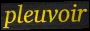
pleuvoir